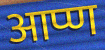
आप्ण